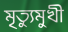
মৃত্যুমুখী